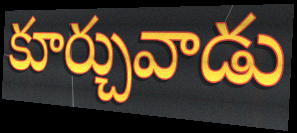
కూర్చువాడు